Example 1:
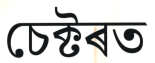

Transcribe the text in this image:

চেক্টৰত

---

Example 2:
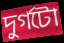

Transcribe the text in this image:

দুৰ্গটো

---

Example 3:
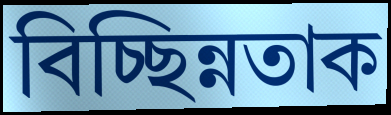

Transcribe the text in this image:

বিচ্ছিন্নতাক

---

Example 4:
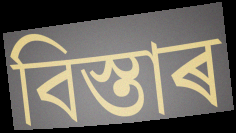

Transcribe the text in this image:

বিস্তাৰ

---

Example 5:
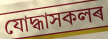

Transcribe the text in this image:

যোদ্ধাসকলৰ